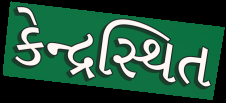
કેન્દ્રસ્થિત